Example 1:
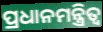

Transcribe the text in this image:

ପ୍ରଧାନମନ୍ତ୍ରିତ୍ଵ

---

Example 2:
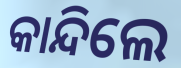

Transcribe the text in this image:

କାନ୍ଦିଲେ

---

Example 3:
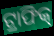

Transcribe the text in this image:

ଟ୍ରାଫିକ୍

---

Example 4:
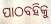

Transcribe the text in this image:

ପାଠବହିକୁ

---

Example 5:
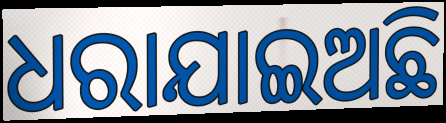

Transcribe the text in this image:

ଧରାଯାଇଅଛି